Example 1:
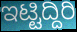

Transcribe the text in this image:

ಇಟ್ಟಿದ್ದಿರಿ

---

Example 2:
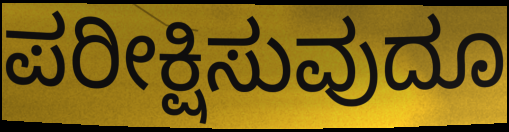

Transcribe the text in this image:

ಪರೀಕ್ಷಿಸುವುದೂ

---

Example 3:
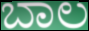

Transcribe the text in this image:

ಬಾಲ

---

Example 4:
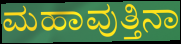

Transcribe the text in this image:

ಮಹಾವುತ್ತಿನಾ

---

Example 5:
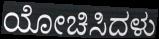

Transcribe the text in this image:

ಯೋಚಿಸಿದಳು